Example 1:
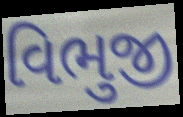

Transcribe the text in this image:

વિભુજી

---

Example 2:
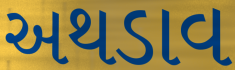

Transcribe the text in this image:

અથડાવ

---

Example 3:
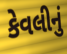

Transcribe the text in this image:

કેવલીનું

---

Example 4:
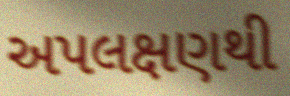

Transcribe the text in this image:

અપલક્ષણથી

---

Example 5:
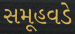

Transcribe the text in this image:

સમૂહવડે